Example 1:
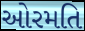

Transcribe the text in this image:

ઓરમતિ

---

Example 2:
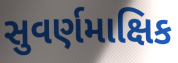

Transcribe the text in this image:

સુવર્ણમાક્ષિક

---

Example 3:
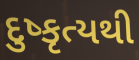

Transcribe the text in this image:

દુષ્કૃત્યથી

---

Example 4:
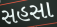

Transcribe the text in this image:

સહસા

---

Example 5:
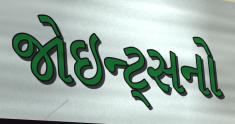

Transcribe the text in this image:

જોઇન્ટ્સનો